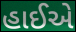
હાઈએ